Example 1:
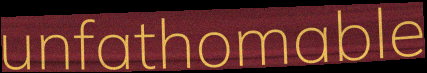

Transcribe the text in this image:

unfathomable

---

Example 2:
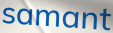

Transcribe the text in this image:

samant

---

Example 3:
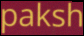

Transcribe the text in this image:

paksh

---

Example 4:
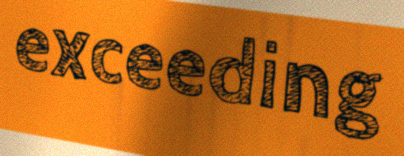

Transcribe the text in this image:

exceeding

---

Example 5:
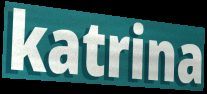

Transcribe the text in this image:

katrina